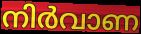
നിർവാണ